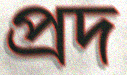
প্রদ